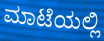
ಮಾಟೆಯಲ್ಲಿ